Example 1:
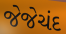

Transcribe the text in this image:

જેજેચંદ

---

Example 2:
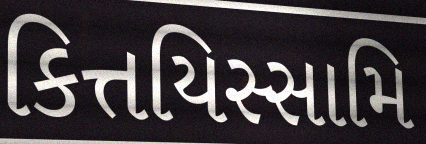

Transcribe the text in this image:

કિત્તયિસ્સામિ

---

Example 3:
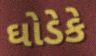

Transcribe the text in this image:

ઘોડેકે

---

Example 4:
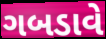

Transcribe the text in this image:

ગબડાવે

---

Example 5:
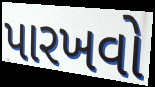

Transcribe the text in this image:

પારખવો